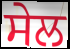
ਸੇਲ